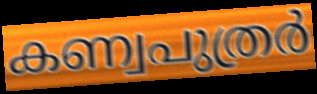
കണ്വപുത്രർ